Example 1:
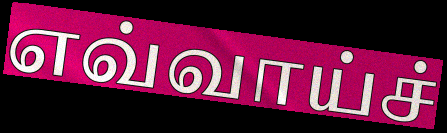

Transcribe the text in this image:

எவ்வாய்ச்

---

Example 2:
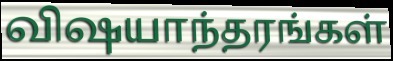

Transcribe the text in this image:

விஷயாந்தரங்கள்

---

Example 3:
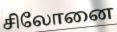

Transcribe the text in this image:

சிலோனை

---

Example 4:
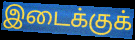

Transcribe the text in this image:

இடைக்குக்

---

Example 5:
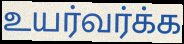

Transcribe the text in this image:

உயர்வர்க்க